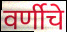
वर्णीचे